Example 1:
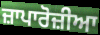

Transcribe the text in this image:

ਜ਼ਾਪਾਰੋਜ਼ੀਆ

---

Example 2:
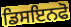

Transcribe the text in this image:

ਡਿਸਇਨਫੋ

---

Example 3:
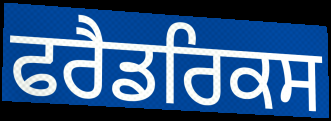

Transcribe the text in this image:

ਫਰੈਡਰਿਕਸ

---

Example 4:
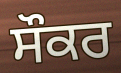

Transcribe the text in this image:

ਸੌਕਰ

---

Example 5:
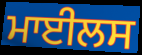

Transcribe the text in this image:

ਮਾਈਲਸ